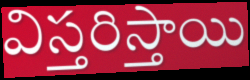
విస్తరిస్తాయి